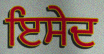
ਇਸੇਦ